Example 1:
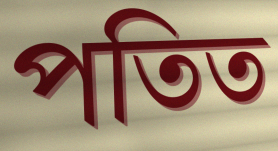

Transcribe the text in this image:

পতিত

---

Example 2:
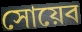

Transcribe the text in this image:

সোয়েব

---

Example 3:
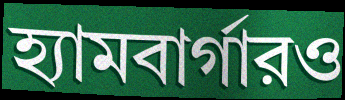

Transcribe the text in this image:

হ্যামবার্গারও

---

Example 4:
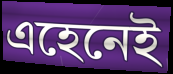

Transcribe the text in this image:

এহেনেই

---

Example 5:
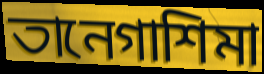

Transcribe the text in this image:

তানেগাশিমা